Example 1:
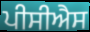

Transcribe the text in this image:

ਪੀਸੀਐਸ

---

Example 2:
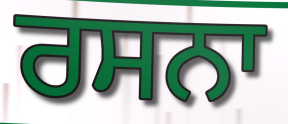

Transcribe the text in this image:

ਰਸਨਾ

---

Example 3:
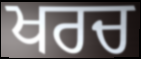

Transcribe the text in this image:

ਖਰਚ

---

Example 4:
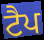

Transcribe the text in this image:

ਟੈਪ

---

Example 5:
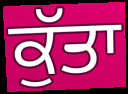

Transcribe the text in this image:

ਕੁੱਤਾ